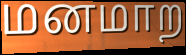
மனமாற